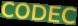
CODEC